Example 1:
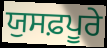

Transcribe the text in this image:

ਯੁਸਫ਼ਪੂਰੇ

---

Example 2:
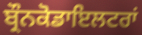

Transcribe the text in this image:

ਬ੍ਰੌਨਕੋਡਾਇਲਟਰਾਂ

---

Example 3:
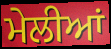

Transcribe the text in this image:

ਮੇਲੀਆਂ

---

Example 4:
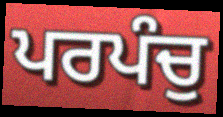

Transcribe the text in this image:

ਪਰਪੰਚੁ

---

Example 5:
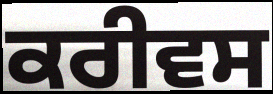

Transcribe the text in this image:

ਕਰੀਵਸ